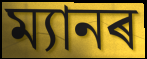
ম্যানৰ